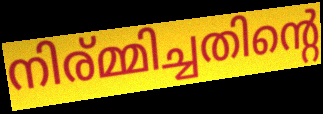
നിര്മ്മിച്ചതിന്റെ